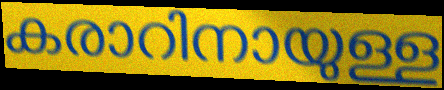
കരാറിനായുള്ള